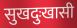
सुखदुःखासी